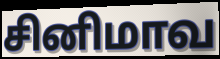
சினிமாவ